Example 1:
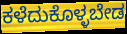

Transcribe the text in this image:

ಕಳೆದುಕೊಳ್ಳಬೇಡ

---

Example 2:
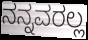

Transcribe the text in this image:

ನನ್ನವರಲ್ಲ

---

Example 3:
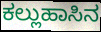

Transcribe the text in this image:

ಕಲ್ಲುಹಾಸಿನ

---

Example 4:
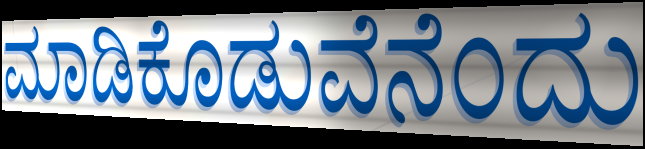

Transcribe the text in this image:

ಮಾಡಿಕೊಡುವೆನೆಂದು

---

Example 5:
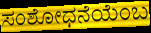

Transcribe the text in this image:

ಸಂಶೋಧನೆಯೆಂಬ